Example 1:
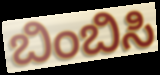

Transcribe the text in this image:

ಬಿಂಬಿಸಿ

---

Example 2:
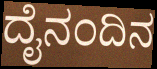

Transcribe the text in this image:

ದೈನಂದಿನ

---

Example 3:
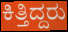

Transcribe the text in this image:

ಕಿತ್ತಿದ್ದರು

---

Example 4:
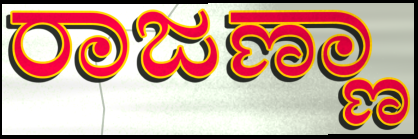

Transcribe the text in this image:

ರಾಜಣ್ಣಾ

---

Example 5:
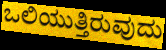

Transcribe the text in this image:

ಒಲಿಯುತ್ತಿರುವುದು